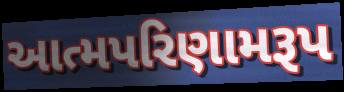
આત્મપરિણામરૂપ